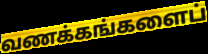
வணக்கங்களைப்